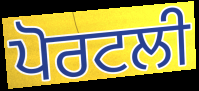
ਪੋਰਟਲੀ